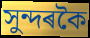
সুন্দৰকৈ